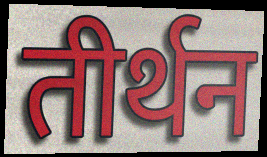
तीर्थन